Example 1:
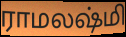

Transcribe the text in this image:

ராமலஷ்மி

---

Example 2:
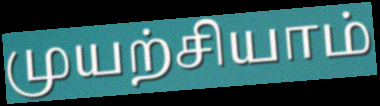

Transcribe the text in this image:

முயற்சியாம்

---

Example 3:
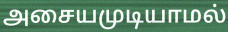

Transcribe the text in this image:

அசையமுடியாமல்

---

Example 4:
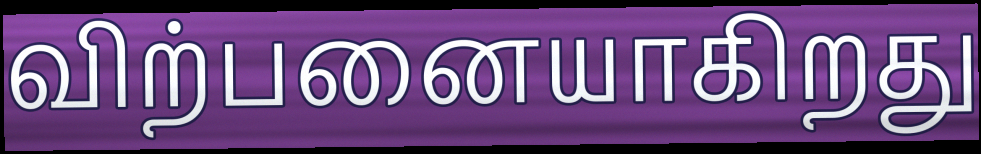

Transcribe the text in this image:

விற்பனையாகிறது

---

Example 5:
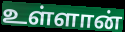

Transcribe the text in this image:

உள்ளான்